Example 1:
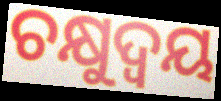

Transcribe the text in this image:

ଚକ୍ଷୁଦ୍ଵୟ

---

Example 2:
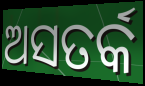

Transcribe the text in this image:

ଅସତର୍କ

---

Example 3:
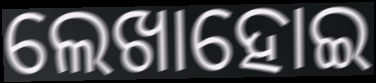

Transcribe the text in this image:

ଲେଖାହୋଇ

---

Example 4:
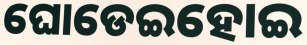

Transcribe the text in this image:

ଘୋଡେଇହୋଇ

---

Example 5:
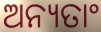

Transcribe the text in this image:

ଅନ୍ୟତାଂ